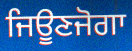
ਜਿਊਣਜੋਗਾ